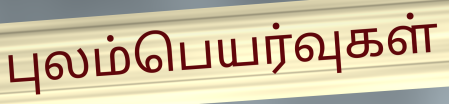
புலம்பெயர்வுகள்